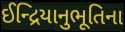
ઈન્દ્રિયાનુભૂતિના